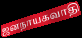
ஜனநாயகவாதி